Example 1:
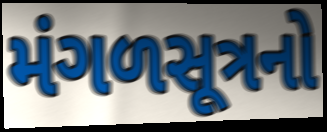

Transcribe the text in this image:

મંગળસૂત્રનો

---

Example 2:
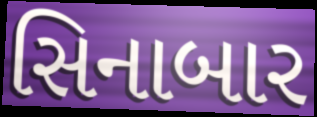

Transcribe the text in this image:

સિનાબાર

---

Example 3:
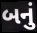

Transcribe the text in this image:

બનું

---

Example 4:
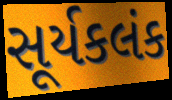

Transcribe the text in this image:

સૂર્યકલંક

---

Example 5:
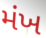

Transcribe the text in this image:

મંખ